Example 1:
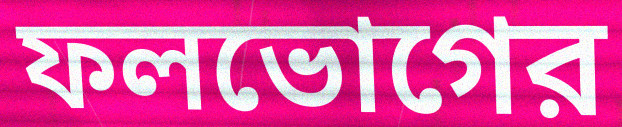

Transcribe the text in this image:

ফলভোগের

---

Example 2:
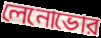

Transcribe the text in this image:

লেনোভোর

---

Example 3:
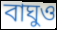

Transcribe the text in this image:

বাঘুও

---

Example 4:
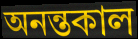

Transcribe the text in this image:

অনন্তকাল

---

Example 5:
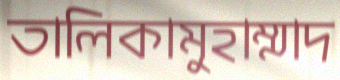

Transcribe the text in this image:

তালিকামুহাম্মাদ